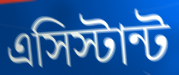
এসিস্টান্ট